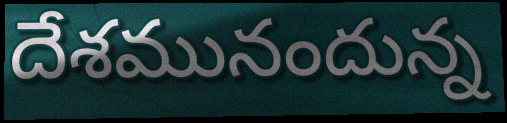
దేశమునందున్న